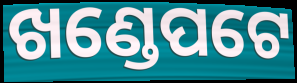
ଖଣ୍ଡେପଟେ